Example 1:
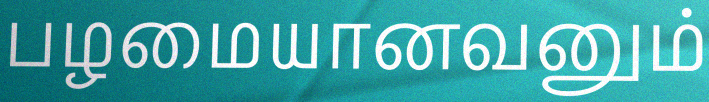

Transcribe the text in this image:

பழமையானவனும்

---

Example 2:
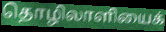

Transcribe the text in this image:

தொழிலாளியைக்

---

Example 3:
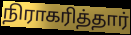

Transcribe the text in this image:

நிராகரித்தார்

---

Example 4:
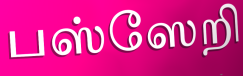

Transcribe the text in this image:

பஸ்ஸேறி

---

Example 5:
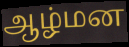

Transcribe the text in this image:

ஆழ்மன